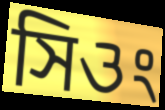
সিওং